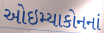
ઓઇમ્યાકોનનાં